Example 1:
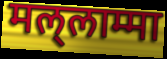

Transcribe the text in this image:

मल्लाम्मा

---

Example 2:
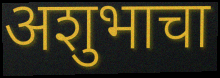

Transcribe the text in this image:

अशुभाचा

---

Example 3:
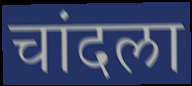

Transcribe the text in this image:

चांदला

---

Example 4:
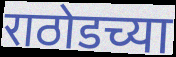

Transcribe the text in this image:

राठोडच्या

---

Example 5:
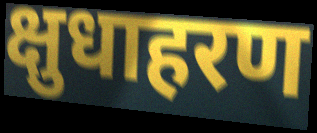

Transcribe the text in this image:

क्षुधाहरण